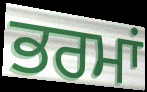
ਭਰਮਾਂ